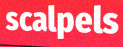
scalpels